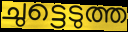
ചുട്ടെടുത്ത